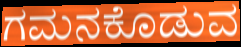
ಗಮನಕೊಡುವ